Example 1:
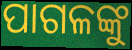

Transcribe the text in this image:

ପାଗଳଙ୍କୁ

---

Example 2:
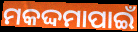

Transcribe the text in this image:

ମକଦ୍ଦମାପାଇଁ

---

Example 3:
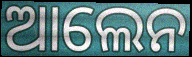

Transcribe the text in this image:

ଆଲେନ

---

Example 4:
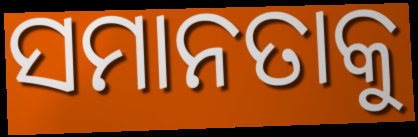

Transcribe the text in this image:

ସମାନତାକୁ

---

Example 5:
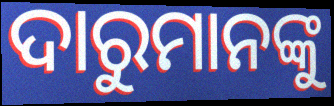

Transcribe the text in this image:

ଦାରୁମାନଙ୍କୁ